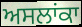
ਅਸਲਾਂਕਾ